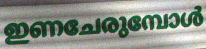
ഇണചേരുമ്പോൾ